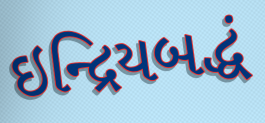
ઇન્દ્રિયબદ્ધં